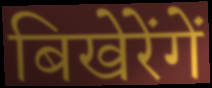
बिखेरेंगें